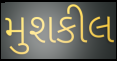
મુશકીલ